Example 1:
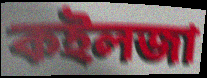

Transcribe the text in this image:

কইলজা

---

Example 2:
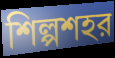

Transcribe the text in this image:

শিল্পশহর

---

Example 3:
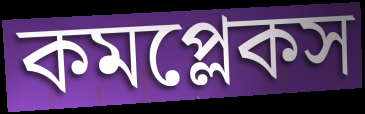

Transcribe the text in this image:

কমপ্লেকস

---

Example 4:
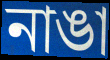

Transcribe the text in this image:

নাঙা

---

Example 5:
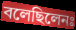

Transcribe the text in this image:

বলেছিলেনঃ